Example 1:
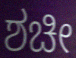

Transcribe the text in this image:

ಶಚೀ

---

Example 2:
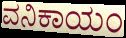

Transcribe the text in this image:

ವನಿಕಾಯಂ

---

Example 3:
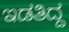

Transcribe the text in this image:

ಇಡತಿದ್ದ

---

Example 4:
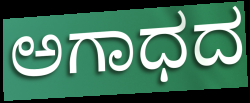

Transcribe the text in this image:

ಅಗಾಧದ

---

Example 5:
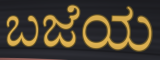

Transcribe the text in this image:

ಬಜೆಯ